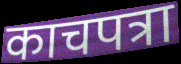
काचपत्रा